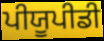
ਪੀਯੂਪੀਡੀ